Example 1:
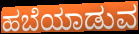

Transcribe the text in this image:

ಹಬೆಯಾಡುವ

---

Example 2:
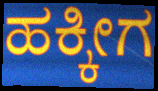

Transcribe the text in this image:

ಹಕ್ಕೀಗ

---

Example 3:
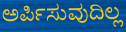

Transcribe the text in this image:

ಅರ್ಪಿಸುವುದಿಲ್ಲ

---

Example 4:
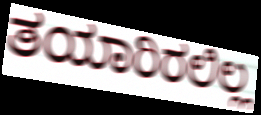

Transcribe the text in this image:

ತಯಾರಿರಲಿಲ್ಲ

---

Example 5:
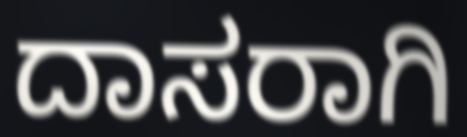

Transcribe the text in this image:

ದಾಸರಾಗಿ